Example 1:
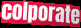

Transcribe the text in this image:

colporate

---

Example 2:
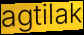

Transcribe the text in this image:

agtilak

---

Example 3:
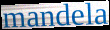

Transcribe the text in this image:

mandela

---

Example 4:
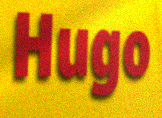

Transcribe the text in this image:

Hugo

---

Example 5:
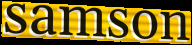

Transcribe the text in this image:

samson